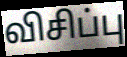
விசிப்பு